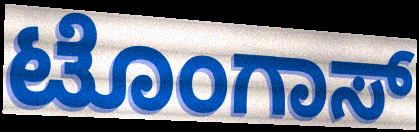
ಟೊಂಗಾಸ್